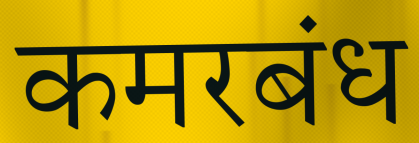
कमरबंध